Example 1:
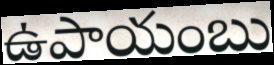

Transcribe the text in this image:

ఉపాయంబు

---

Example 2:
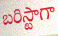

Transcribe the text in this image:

బరిస్టాగా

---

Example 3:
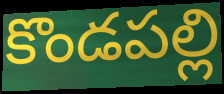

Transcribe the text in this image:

కొండపల్లి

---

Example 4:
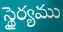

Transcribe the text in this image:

స్థైర్యము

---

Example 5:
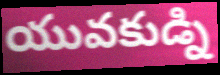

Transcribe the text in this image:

యువకుడ్ని